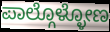
ಪಾಲ್ಗೊಳ್ಳೋಣ